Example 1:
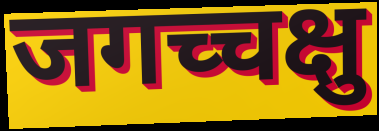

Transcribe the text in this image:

जगच्चक्षु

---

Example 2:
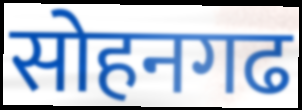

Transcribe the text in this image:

सोहनगढ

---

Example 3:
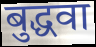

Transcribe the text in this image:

बुद्धवा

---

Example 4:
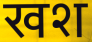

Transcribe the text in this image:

खश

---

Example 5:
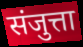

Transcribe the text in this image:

संजुत्ता